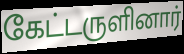
கேட்டருளினார்